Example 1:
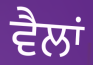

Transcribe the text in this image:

ਵੈਲਾਂ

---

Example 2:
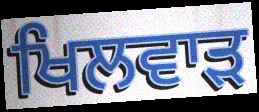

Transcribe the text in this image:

ਖਿਲਵਾੜ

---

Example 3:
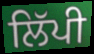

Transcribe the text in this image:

ਲਿੱਪੀ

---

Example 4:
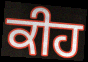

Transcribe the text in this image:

ਕੀਹ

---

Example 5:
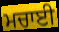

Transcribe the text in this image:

ਮਚਾਈ